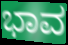
ಭಾವ